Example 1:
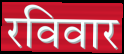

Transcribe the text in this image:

रविवार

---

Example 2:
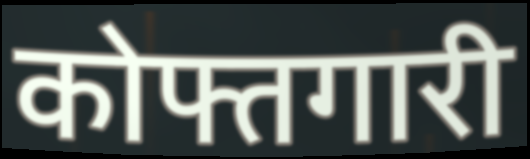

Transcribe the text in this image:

कोफ्तगारी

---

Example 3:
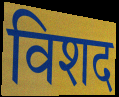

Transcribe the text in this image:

विशद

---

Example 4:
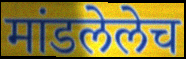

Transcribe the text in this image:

मांडलेलेच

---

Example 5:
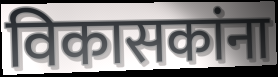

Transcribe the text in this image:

विकासकांना